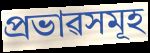
প্ৰভাৱসমূহ